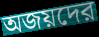
অজয়দের